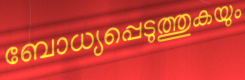
ബോധ്യപ്പെടുത്തുകയും